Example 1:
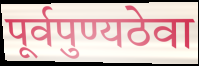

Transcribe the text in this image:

पूर्वपुण्यठेवा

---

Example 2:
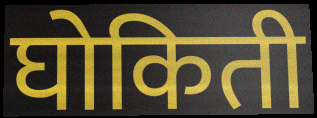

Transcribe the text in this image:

घोकिती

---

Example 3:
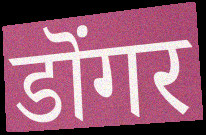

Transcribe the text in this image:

डॊंगर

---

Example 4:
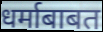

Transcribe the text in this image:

धर्माबाबत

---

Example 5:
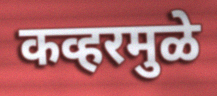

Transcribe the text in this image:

कव्हरमुळे